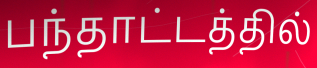
பந்தாட்டத்தில்